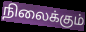
நிலைக்கும்